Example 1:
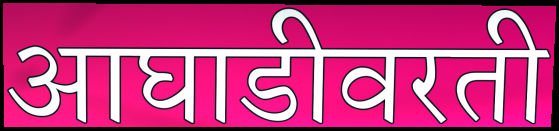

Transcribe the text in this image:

आघाडीवरती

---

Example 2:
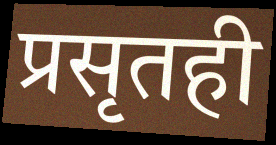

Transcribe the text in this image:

प्रसृतही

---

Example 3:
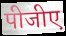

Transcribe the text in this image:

पीजीए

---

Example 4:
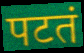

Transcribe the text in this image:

पटतं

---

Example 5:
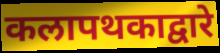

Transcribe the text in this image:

कलापथकाद्वारे